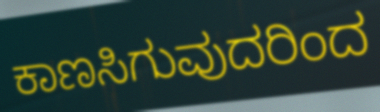
ಕಾಣಸಿಗುವುದರಿಂದ